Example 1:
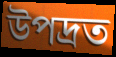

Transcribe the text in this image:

উপদ্রত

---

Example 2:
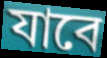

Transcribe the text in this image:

যাবে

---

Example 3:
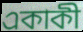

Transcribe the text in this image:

একাকী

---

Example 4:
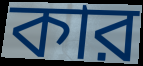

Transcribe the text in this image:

কার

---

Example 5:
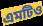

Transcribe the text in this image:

এমটিও